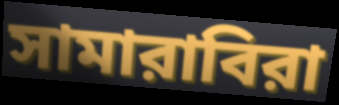
সামারাবিরা